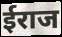
ईराज